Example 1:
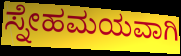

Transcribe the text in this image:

ಸ್ನೇಹಮಯವಾಗಿ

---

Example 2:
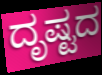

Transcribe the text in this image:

ದೃಷ್ಟದ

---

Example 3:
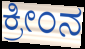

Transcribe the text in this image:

ಕ್ರೀಂನ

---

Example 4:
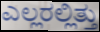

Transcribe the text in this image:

ಎಲ್ಲರಲ್ಲಿತ್ತು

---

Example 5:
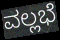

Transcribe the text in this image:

ವಲ್ಲಭೆ